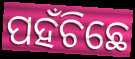
ପହଁଚିଛେ